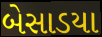
બેસાડયા